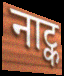
नाट्क